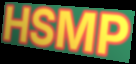
HSMP